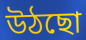
উঠছো